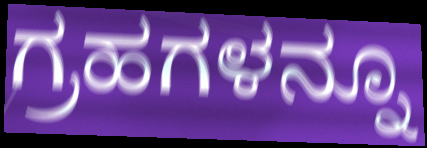
ಗ್ರಹಗಳನ್ನೂ